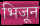
भिजून